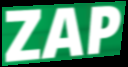
ZAP